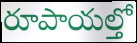
రూపాయల్తో